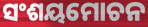
ସଂଶୟମୋଚନ